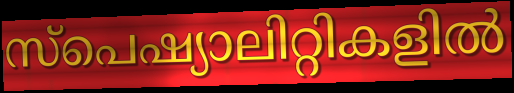
സ്പെഷ്യാലിറ്റികളിൽ